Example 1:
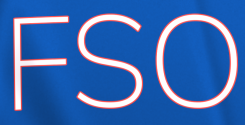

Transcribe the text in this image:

FSO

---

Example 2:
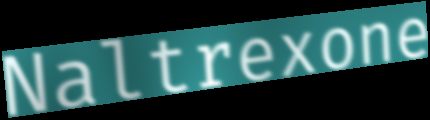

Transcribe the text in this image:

Naltrexone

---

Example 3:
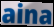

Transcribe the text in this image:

aina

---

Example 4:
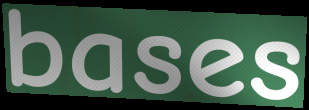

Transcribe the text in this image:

bases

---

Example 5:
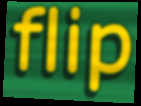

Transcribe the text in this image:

flip